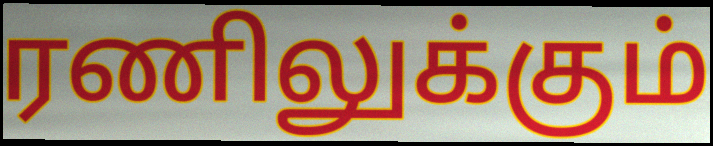
ரணிலுக்கும்